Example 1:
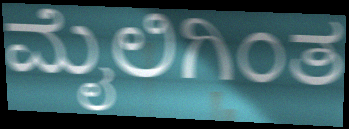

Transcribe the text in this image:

ಮೈಲಿಗಿಂತ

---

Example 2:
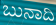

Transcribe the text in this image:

ಬುನಾದಿ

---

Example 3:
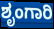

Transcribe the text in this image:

ಶೃಂಗಾರಿ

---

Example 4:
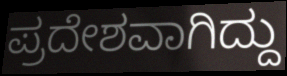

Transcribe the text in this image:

ಪ್ರದೇಶವಾಗಿದ್ದು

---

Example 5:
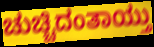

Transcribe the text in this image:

ಚುಚ್ಚಿದಂತಾಯ್ತು